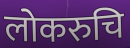
लोकरुचि